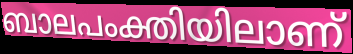
ബാലപംക്തിയിലാണ്